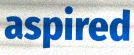
aspired